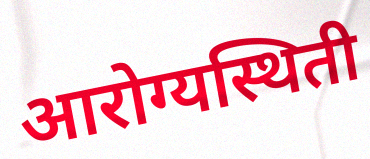
आरोग्यस्थिती